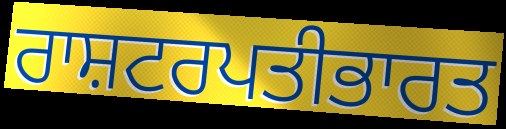
ਰਾਸ਼ਟਰਪਤੀਭਾਰਤ